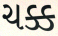
ચક્ક